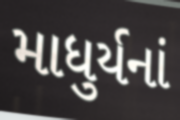
માધુર્યનાં